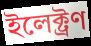
ইলেক্ট্ৰণ